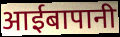
आईबापानी